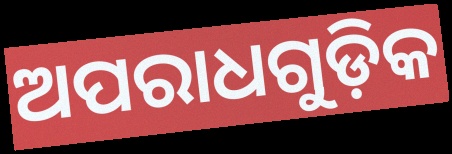
ଅପରାଧଗୁଡ଼ିକ